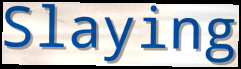
Slaying